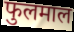
फुलमाल